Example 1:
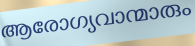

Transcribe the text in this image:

ആരോഗ്യവാന്മാരും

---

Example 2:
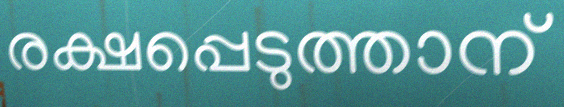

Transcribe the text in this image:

രക്ഷപ്പെടുത്താന്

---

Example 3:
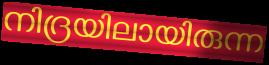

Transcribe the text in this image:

നിദ്രയിലായിരുന്ന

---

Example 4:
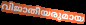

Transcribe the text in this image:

വിജാതീയരുമായ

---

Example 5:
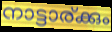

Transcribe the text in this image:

നാട്ടാര്ക്കും